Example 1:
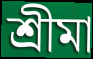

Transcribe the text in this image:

শ্রীমা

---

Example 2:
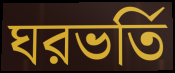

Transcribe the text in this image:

ঘরভর্তি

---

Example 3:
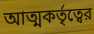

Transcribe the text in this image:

আত্মকর্তৃত্বের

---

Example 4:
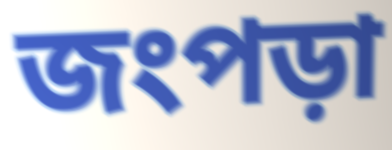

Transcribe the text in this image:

জংপড়া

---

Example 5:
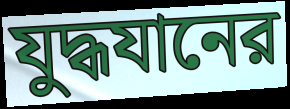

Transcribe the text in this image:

যুদ্ধযানের